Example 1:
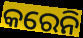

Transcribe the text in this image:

କରେନି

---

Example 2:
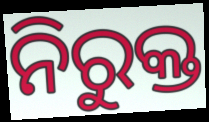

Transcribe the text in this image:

ନିରୁକ୍ତ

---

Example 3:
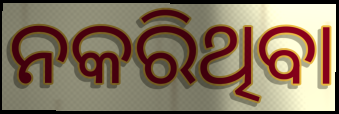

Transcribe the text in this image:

ନକରିଥିବା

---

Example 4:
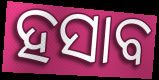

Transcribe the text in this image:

ହସାବ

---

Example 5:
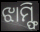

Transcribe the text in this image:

ଝାମ୍ଫି